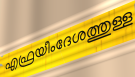
എഫ്രയീംദേശത്തുള്ള